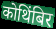
कोथिंबिर